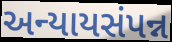
અન્યાયસંપન્ન